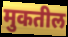
मुकतील